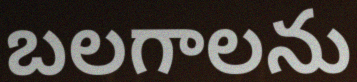
బలగాలను